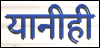
यानीही